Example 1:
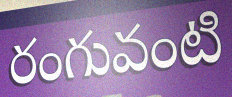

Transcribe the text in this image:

రంగువంటి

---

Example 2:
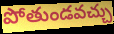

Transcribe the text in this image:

పోతుండవచ్చు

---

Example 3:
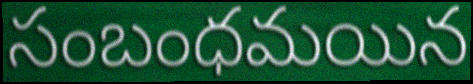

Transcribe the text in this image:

సంబంధమయిన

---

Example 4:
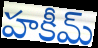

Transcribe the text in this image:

హకీమ్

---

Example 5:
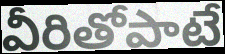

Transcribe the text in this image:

వీరితోపాటే